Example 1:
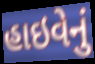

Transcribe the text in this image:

હાઇવેનું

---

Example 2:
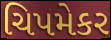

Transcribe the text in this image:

ચિપમેકર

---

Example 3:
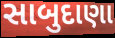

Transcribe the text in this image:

સાબુદાણા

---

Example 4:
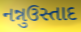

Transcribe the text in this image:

નન્નુઉસ્તાદ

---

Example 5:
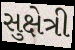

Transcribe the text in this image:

સુક્ષેત્રી